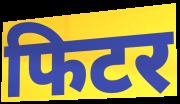
फिटर